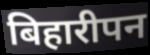
बिहारीपन